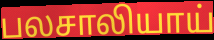
பலசாலியாய்